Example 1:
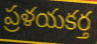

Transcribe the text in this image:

ప్రళయకర్త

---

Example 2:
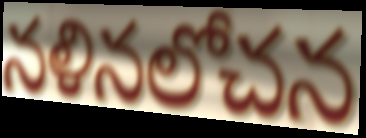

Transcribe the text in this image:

నళినలోచన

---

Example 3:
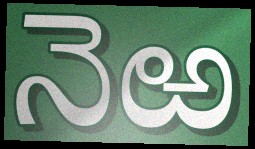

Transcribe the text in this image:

నెఱ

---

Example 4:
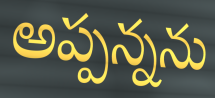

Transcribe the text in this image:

అప్పన్నను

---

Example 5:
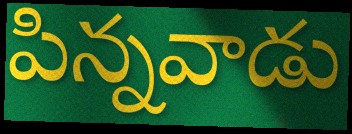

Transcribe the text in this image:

పిన్నవాడు